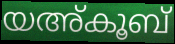
യഅ്കൂബ്